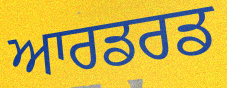
ਆਰਡਰਡ